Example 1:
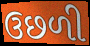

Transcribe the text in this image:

ઉછળી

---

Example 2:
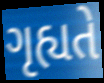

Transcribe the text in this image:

ગૃહ્યતે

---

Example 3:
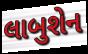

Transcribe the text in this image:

લાબુશેન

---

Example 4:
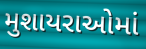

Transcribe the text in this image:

મુશાયરાઓમાં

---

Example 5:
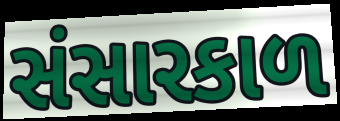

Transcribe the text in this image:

સંસારકાળ